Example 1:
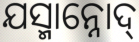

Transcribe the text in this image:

ଯସ୍ମାନ୍ନୋଦ୍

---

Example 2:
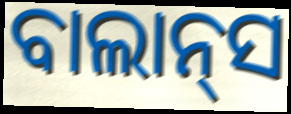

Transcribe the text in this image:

ବାଲାନ୍‌ସ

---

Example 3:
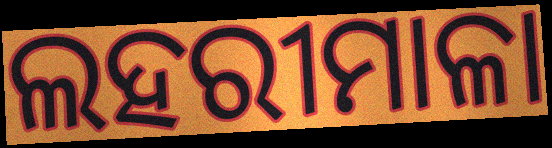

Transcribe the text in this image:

ଲହରୀମାଳା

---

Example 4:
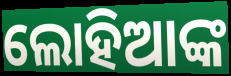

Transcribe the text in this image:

ଲୋହିଆଙ୍କ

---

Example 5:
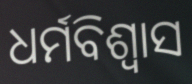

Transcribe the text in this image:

ଧର୍ମବିଶ୍ବାସ